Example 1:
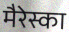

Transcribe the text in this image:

मैरेस्का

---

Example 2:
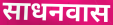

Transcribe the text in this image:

साधनवास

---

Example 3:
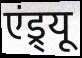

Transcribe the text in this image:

एंड्र्यू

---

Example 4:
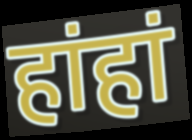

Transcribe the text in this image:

हांहां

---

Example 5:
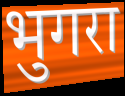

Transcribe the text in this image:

भुगरा